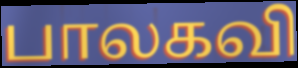
பாலகவி